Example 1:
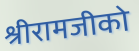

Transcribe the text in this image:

श्रीरामजीको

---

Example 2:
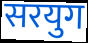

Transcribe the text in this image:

सरयुग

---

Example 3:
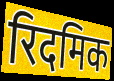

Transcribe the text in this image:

रिदमिक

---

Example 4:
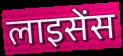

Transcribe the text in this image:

लाइसेंस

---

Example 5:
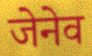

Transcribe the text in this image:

जेनेव